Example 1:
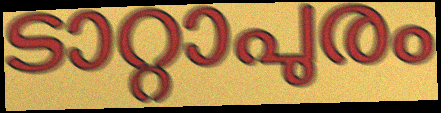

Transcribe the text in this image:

ടാറ്റാപുരം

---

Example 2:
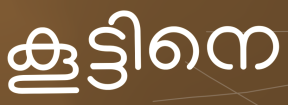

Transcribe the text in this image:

കൂട്ടിനെ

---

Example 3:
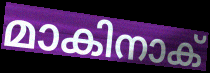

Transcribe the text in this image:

മാകിനാക്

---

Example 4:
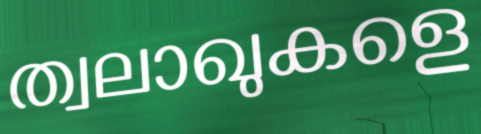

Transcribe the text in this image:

ത്വലാഖുകളെ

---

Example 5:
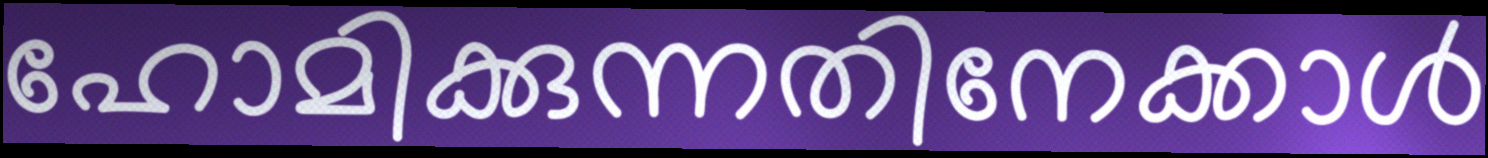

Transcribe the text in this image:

ഹോമിക്കുന്നതിനേക്കാൾ